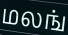
மலங்